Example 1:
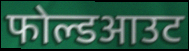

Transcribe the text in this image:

फोल्डआउट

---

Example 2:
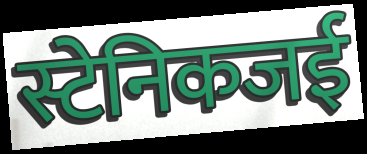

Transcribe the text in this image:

स्टेनिकजई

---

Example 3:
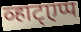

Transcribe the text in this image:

व्हाट्एप्प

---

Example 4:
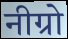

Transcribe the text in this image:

नीग्रो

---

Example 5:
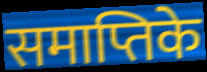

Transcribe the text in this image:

समाप्तिके